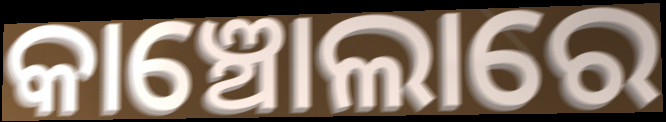
କାଞ୍ଚୋଲାରେ